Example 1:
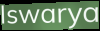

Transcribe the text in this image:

Iswarya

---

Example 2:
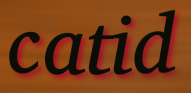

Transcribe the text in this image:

catid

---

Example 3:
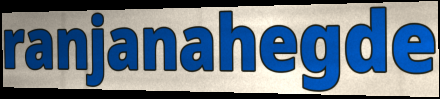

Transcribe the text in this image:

ranjanahegde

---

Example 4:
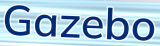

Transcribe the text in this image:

Gazebo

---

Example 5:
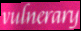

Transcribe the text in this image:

vulnerary